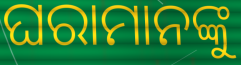
ଘରାମାନଙ୍କୁ